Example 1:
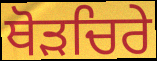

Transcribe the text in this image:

ਥੋੜਚਿਰੇ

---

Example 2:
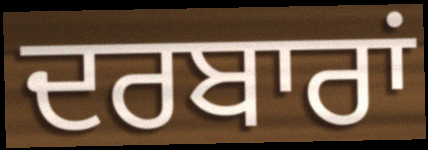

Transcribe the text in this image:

ਦਰਬਾਰਾਂ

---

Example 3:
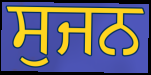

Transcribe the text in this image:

ਸੁਜਨ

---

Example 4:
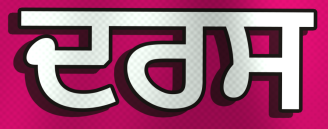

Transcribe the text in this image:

ਦਰਸ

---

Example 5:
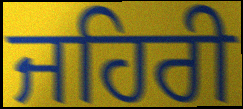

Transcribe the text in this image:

ਜਹਿਰੀ